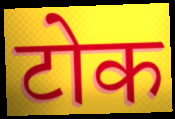
टोक